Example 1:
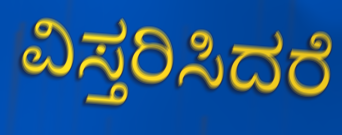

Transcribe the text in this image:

ವಿಸ್ತರಿಸಿದರೆ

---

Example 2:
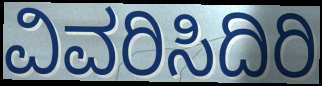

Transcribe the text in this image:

ವಿವರಿಸಿದಿರಿ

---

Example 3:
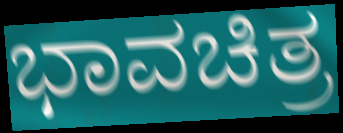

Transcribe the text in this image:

ಭಾವಚಿತ್ರ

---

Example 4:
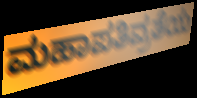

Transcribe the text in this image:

ಮಹಾಪತಿವ್ರತೆಯ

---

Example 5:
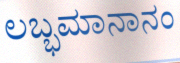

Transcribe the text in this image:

ಲಬ್ಭಮಾನಾನಂ